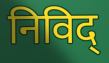
निविद्